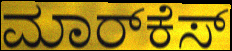
ಮಾರ್‌ಕೆಸ್